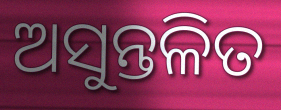
ଅସୁନ୍ତଳିତ